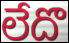
లేదొ